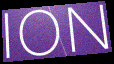
ION